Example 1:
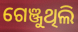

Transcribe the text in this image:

ଗେଞ୍ଜୁଥିଲି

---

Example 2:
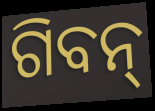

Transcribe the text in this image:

ଗିବନ୍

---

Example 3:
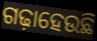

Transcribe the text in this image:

ଗଢ଼ାହେଉଛି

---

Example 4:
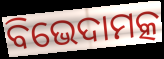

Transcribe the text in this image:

ବିଭେଦାମତ୍କ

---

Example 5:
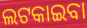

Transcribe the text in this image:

ଲଟକାଇବା